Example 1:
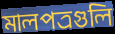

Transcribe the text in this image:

মালপত্রগুলি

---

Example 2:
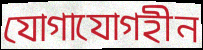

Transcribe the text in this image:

যোগাযোগহীন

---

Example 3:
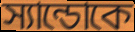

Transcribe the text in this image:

স্যান্ডোকে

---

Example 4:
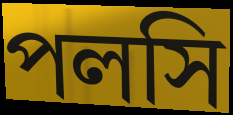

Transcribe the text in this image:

পলসি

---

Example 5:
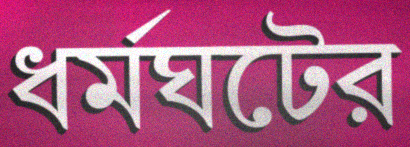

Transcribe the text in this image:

ধর্মঘটের